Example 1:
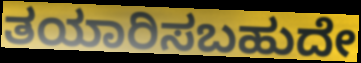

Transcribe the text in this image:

ತಯಾರಿಸಬಹುದೇ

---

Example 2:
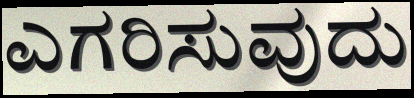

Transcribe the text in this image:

ಎಗರಿಸುವುದು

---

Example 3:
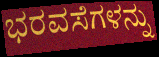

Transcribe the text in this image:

ಭರವಸೆಗಳನ್ನು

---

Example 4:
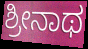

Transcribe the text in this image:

ಶ್ರೀನಾಥ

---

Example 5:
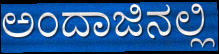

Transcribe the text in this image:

ಅಂದಾಜಿನಲ್ಲಿ